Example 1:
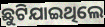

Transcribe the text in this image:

ଛୁଟିଯାଇଥିଲେ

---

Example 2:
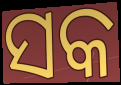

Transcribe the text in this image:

ସକ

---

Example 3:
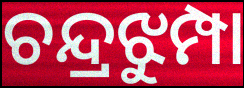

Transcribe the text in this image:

ଚନ୍ଦ୍ରଝୁମ୍ପା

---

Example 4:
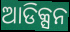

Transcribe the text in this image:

ଆଡିକ୍ସନ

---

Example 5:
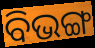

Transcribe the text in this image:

ବିଭଙ୍ଗ